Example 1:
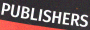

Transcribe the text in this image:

PUBLISHERS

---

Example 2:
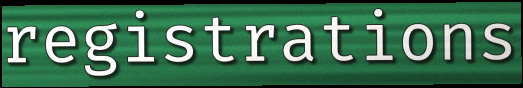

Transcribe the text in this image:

registrations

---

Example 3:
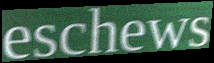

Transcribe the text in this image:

eschews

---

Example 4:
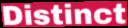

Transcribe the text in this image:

Distinct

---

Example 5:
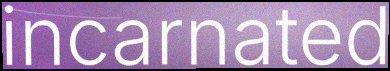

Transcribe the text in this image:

incarnated